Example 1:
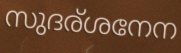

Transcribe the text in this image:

സുദര്ശനേന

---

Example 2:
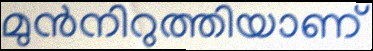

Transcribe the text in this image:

മുൻനിറുത്തിയാണ്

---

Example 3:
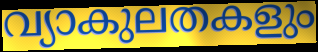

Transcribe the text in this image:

വ്യാകുലതകളും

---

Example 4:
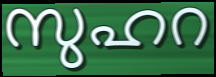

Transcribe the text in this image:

സുഹറ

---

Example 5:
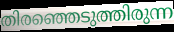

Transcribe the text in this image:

തിരഞ്ഞെടുത്തിരുന്ന